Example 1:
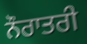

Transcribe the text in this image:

ਨੌਰਾਤਰੀ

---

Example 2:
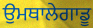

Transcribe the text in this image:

ਉਮਥਾਲੇਗਾਡੂ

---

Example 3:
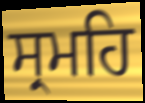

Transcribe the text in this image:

ਸ੍ਰਮਹਿ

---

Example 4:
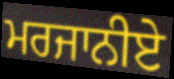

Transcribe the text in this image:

ਮਰਜਾਨੀਏ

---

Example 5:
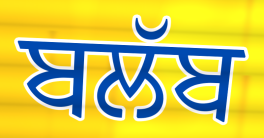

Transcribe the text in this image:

ਬਲੱਬ